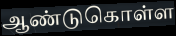
ஆண்டுகொள்ள